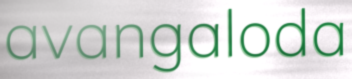
avangaloda